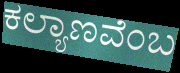
ಕಲ್ಯಾಣವೆಂಬ